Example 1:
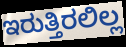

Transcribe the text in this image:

ಇರುತ್ತಿರಲಿಲ್ಲ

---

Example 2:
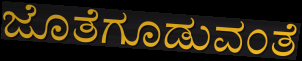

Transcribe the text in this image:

ಜೊತೆಗೂಡುವಂತೆ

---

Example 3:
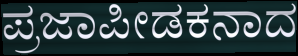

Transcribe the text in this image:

ಪ್ರಜಾಪೀಡಕನಾದ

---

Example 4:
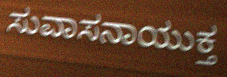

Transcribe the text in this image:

ಸುವಾಸನಾಯುಕ್ತ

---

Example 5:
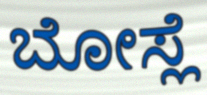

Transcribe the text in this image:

ಬೋಸ್ಲೆ